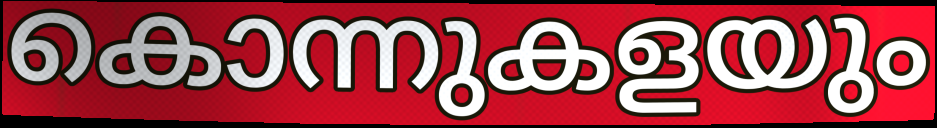
കൊന്നുകളയും